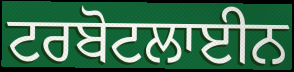
ਟਰਬੋਟਲਾਈਨ